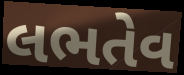
લભતેવ